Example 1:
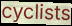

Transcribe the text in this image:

cyclists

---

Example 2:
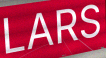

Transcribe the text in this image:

LARS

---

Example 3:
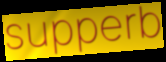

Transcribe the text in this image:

supperb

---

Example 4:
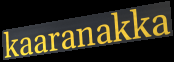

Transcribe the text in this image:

kaaranakka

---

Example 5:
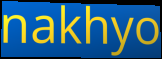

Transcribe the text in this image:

nakhyo